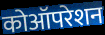
कोऑपरेशन